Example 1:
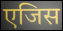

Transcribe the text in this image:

एजिस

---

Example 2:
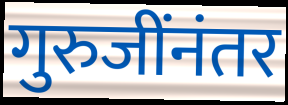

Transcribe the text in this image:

गुरुजींनंतर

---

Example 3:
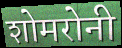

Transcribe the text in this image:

शोमरोनी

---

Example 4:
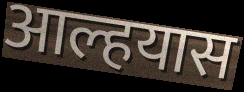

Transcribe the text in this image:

आल्हयास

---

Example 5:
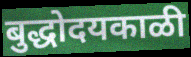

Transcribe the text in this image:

बुद्धोदयकाळी